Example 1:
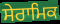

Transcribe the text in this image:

ਸੇਰਾਮਿਕ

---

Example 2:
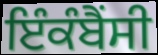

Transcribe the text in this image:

ਇੰਕੰਬੈਂਸੀ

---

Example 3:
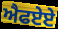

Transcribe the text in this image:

ਐਫਏਏ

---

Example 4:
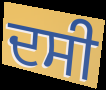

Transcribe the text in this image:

ਦਸੀ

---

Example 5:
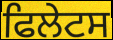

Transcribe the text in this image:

ਫਿਲੇਟਸ